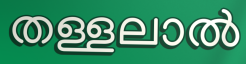
തള്ളലാൽ